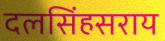
दलसिंहसराय